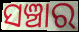
ସଞ୍ଚାର